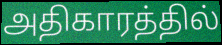
அதிகாரத்தில்